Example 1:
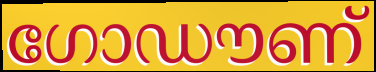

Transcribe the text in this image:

ഗോഡൗണ്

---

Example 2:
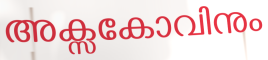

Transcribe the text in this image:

അക്സകോവിനും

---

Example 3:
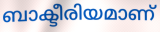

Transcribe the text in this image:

ബാക്ടീരിയമാണ്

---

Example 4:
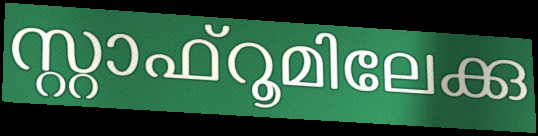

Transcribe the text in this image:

സ്റ്റാഫ്റൂമിലേക്കു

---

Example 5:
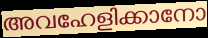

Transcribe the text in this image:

അവഹേളിക്കാനോ